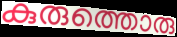
കുരുത്തൊരു